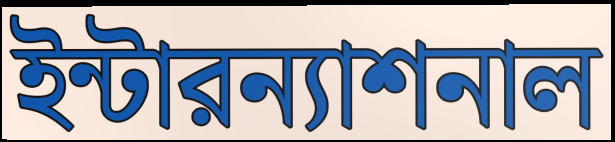
ইন্টারন্যাশনাল